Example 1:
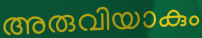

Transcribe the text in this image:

അരുവിയാകും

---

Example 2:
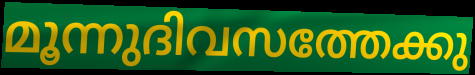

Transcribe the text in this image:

മൂന്നുദിവസത്തേക്കു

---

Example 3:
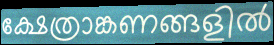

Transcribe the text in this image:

ക്ഷേത്രാങ്കണങ്ങളിൽ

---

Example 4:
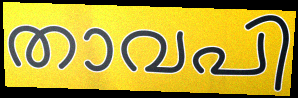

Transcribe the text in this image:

താവപി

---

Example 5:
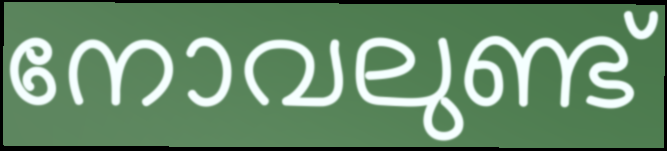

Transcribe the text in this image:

നോവലുണ്ട്